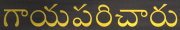
గాయపరిచారు